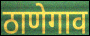
ठाणेगाव